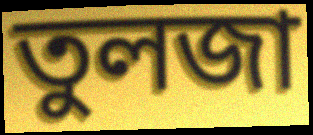
তুলজা